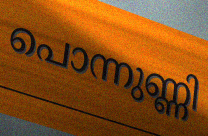
പൊന്നുണ്ണി